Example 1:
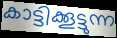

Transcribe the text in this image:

കാട്ടിക്കൂട്ടുന്ന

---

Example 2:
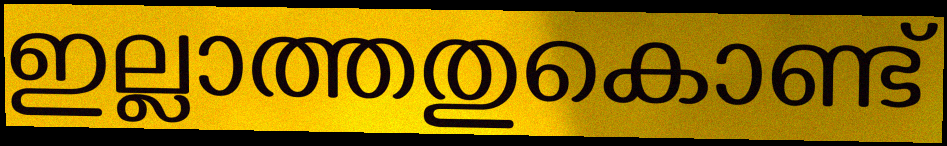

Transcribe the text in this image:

ഇല്ലാത്തതുകൊണ്ട്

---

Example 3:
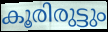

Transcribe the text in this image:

കൂരിരുട്ടും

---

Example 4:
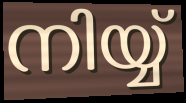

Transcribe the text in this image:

നിയ്യ്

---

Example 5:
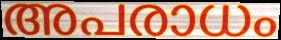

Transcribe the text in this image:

അപരാധം